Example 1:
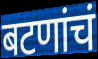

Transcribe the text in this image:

बटणांचं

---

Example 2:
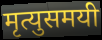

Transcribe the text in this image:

मृत्युसमयी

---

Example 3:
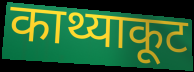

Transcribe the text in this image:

काथ्याकूट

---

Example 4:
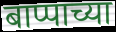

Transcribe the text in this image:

बाप्पाच्या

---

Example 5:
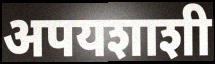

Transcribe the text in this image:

अपयशाशी